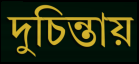
দুচিন্তায়